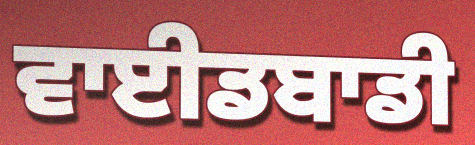
ਵਾਈਡਬਾਡੀ